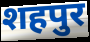
शहपुर